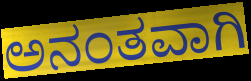
ಅನಂತವಾಗಿ